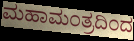
ಮಹಾಮಂತ್ರದಿಂದ